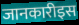
जानकारीइस